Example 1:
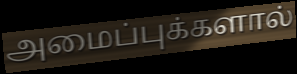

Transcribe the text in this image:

அமைப்புக்களால்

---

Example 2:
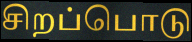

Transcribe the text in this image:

சிறப்பொடு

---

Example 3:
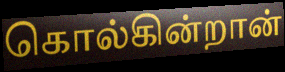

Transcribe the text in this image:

கொல்கின்றான்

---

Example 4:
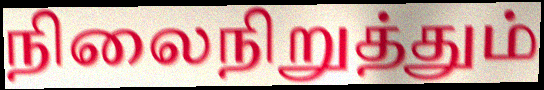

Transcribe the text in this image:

நிலைநிறுத்தும்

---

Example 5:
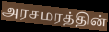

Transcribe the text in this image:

அரசமரத்தின்